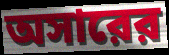
অসারের